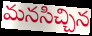
మనసిచ్చిన